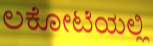
ಲಕೋಟೆಯಲ್ಲಿ